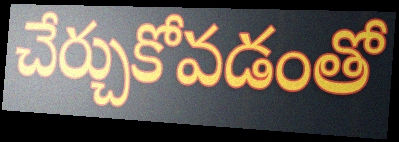
చేర్చుకోవడంతో